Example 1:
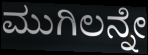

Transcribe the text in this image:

ಮುಗಿಲನ್ನೇ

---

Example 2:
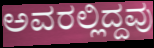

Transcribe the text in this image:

ಅವರಲ್ಲಿದ್ದವು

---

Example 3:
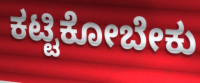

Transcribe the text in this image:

ಕಟ್ಟಿಕೋಬೇಕು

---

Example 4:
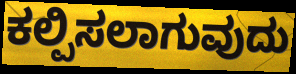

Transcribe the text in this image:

ಕಲ್ಪಿಸಲಾಗುವುದು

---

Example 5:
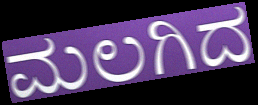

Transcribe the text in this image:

ಮಲಗಿದ